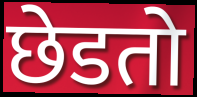
छेडतो